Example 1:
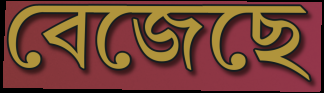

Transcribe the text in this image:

বেজেছে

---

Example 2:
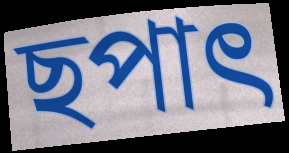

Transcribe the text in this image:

ছপাৎ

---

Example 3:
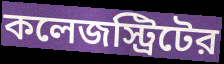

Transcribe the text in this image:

কলেজস্ট্রিটের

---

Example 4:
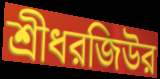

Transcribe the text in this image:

শ্রীধরজিউর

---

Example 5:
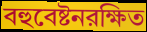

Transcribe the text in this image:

বহুবেষ্টনরক্ষিত